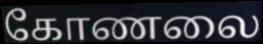
கோணலை